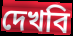
দেখবি